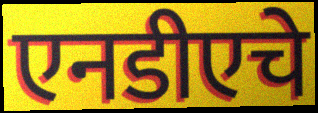
एनडीएचे